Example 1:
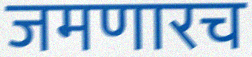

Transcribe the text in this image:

जमणारच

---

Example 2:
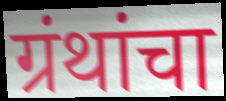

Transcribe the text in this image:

ग्रंथांचा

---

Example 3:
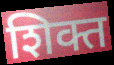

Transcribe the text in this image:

शिक्त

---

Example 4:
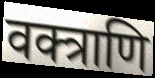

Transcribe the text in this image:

वक्त्राणि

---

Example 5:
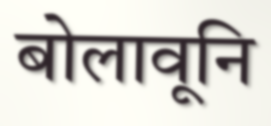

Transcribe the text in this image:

बोलावूनि